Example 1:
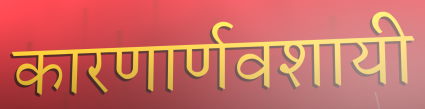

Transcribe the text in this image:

कारणार्णवशायी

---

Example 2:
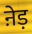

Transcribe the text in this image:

ऩेड़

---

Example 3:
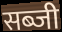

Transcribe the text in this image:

सब्जी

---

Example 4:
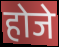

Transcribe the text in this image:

होजे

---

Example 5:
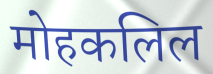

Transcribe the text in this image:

मोहकलिल